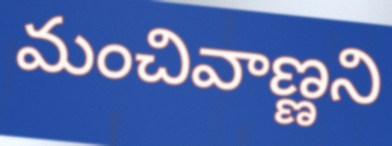
మంచివాణ్ణని